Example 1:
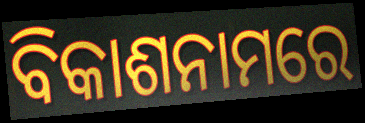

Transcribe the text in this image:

ବିକାଶନାମରେ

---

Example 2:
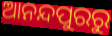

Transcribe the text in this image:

ଆନନ୍ଦପୁରରୁ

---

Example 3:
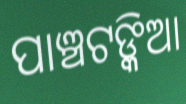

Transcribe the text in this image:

ପାଞ୍ଚଟଙ୍କିଆ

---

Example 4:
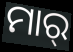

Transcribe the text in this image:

ମାର୍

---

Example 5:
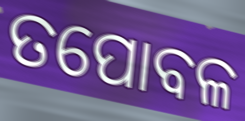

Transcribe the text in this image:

ତପୋବଳ